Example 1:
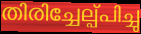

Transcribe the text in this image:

തിരിച്ചേല്പ്പിച്ചു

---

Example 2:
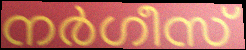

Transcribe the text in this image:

നർഗീസ്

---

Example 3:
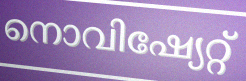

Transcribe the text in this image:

നൊവിഷ്യേറ്റ്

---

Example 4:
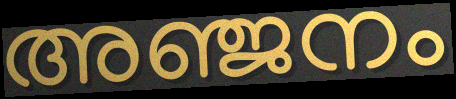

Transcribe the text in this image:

അഞ്ജനം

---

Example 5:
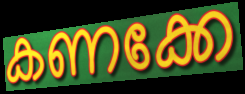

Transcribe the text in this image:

കണക്കേ